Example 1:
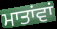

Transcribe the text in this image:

ਮਾਤਾਂਵਾਂ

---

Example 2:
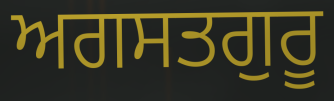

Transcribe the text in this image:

ਅਗਸਤਗੁਰੂ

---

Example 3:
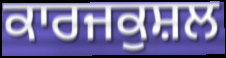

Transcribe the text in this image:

ਕਾਰਜਕੁਸ਼ਲ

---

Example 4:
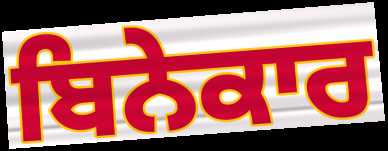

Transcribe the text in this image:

ਬਿਨੇਕਾਰ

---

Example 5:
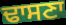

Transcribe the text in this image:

ਢਾਸਣਾ